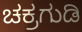
ಚಕ್ರಗುಡಿ